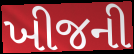
ખીજની